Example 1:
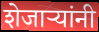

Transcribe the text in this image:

शेजाऱ्यांनी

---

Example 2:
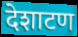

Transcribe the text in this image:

देशाटण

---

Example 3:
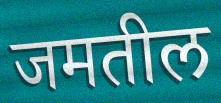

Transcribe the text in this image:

जमतील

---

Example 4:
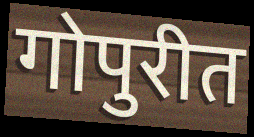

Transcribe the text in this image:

गोपुरीत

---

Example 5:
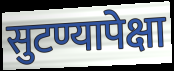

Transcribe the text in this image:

सुटण्यापेक्षा